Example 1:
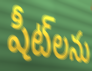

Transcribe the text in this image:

షీట్‌లను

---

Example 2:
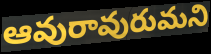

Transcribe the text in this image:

ఆవురావురుమని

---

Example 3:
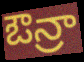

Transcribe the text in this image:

ఔన్రా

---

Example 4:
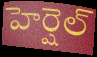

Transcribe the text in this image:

హెర్షెల్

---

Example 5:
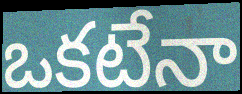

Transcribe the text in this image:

ఒకటేనా